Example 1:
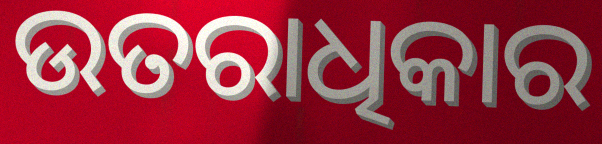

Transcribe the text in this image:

ଉତରାଧିକାର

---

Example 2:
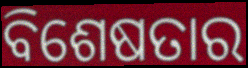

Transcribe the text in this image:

ବିଶେଷତାର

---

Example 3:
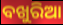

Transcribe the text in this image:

ବଖୁରିଆ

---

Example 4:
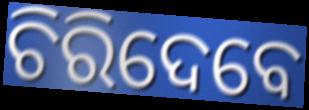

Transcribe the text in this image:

ଚିରିଦେବେ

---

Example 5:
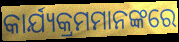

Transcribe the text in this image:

କାର୍ଯ୍ୟକ୍ରମମାନଙ୍କରେ